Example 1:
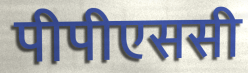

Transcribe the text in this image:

पीपीएससी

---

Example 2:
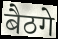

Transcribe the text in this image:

बैठगे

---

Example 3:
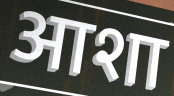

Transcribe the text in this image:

आशा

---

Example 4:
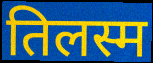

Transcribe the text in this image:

तिलस्म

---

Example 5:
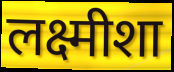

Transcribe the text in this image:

लक्ष्मीशा